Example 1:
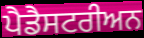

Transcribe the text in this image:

ਪੈਡੈਸਟਰੀਅਨ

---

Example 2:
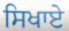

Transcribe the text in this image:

ਸਿਖਾਏ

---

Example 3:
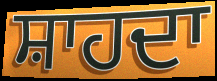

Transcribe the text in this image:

ਸ਼ਾਹਦਾ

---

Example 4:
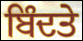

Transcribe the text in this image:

ਬਿੰਦਤੇ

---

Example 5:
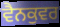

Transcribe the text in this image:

ਵੈਨਕੁਵਰ